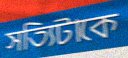
সত্যিটাকে